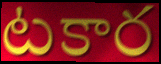
టకార